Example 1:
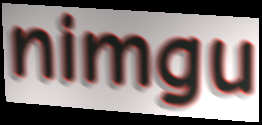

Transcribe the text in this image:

nimgu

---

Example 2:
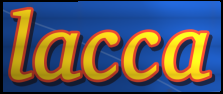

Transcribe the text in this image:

lacca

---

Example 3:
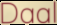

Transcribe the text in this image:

Daal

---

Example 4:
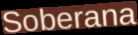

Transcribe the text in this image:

Soberana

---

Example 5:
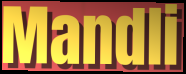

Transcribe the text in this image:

Mandli